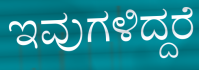
ಇವುಗಳಿದ್ದರೆ